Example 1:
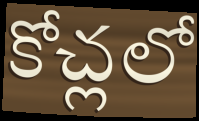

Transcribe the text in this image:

కోచ్లలో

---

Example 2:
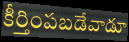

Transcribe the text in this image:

కీర్తింపబడేవాడూ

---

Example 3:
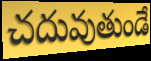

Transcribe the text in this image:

చదువుతుండే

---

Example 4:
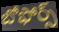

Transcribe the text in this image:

బోఫోర్స్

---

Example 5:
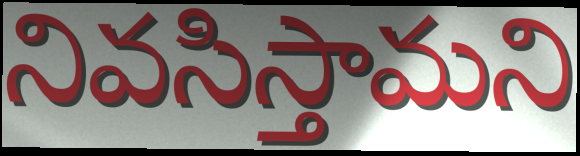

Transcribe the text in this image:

నివసిస్తామని